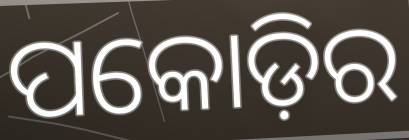
ପକୋଡ଼ିର